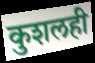
कुशलही